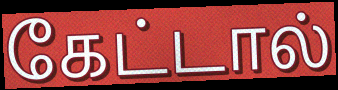
கேட்டால்